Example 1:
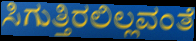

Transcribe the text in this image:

ಸಿಗುತ್ತಿರಲಿಲ್ಲವಂತೆ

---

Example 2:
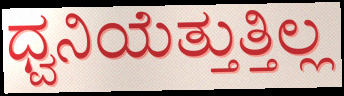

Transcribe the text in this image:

ಧ್ವನಿಯೆತ್ತುತ್ತಿಲ್ಲ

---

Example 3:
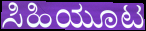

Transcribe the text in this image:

ಸಿಹಿಯೂಟ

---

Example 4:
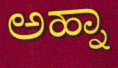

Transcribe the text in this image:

ಅಹ್ನಾ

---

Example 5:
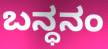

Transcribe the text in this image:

ಬನ್ಧನಂ